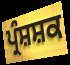
ਪ੍ਰੰਸ਼ਸ਼ਕ